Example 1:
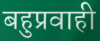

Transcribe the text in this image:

बहुप्रवाही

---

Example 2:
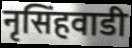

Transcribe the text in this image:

नृसिंहवाडी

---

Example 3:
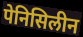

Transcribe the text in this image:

पेनिसिलीन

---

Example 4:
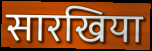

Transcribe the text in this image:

सारखिया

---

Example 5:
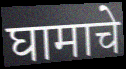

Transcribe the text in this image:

घामाचे